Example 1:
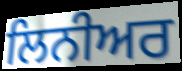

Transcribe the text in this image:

ਲਿਨੀਅਰ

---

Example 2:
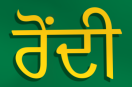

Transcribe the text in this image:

ਰੋਂਦੀ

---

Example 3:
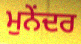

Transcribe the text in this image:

ਮੁਨੇਂਦਰ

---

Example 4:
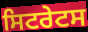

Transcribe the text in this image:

ਸਿਟਰੇਟਸ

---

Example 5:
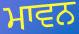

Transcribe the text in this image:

ਮਾਵਨ